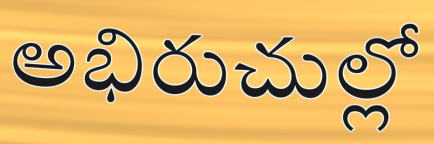
అభిరుచుల్లో